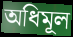
অধিমূল